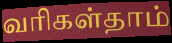
வரிகள்தாம்